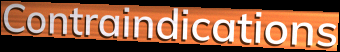
Contraindications